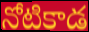
నోటికాడ